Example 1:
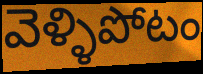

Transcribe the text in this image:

వెళ్ళిపోటం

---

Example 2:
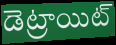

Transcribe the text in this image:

డెట్రాయిట్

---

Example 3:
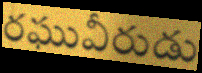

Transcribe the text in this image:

రఘువీరుడు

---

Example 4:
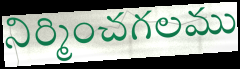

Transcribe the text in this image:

నిర్మించగలము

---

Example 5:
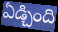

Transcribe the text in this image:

ఏడ్చింది